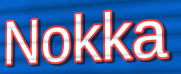
Nokka